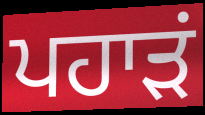
ਪਹਾੜਂ